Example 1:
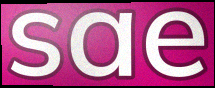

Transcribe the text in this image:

sae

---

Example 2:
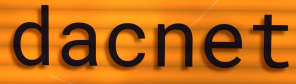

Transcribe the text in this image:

dacnet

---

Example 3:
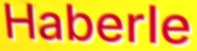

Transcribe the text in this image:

Haberle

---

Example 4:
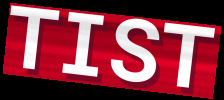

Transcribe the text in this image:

TIST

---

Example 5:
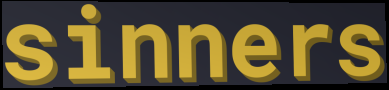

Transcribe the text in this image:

sinners